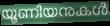
യൂണിയനുകൾ